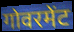
गोवरमेंट